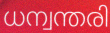
ധന്വന്തരി